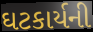
ઘટકાર્યની